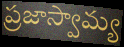
ప్రజాస్వామ్య